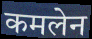
कमलेन